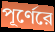
পূর্ণেরে